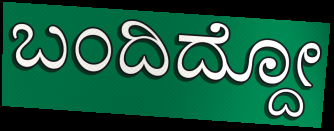
ಬಂದಿದ್ದೋ